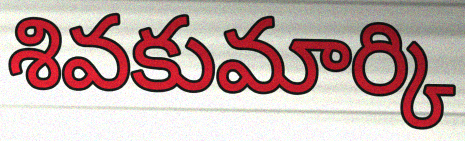
శివకుమార్కి